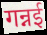
गन्नई